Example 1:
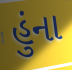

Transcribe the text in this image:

હુંના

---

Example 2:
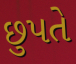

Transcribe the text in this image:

છુપતે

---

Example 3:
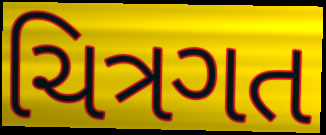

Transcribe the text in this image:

ચિત્રગત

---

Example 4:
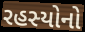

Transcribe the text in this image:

રહસ્યોનો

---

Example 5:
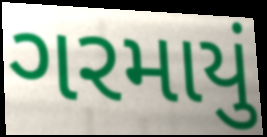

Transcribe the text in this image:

ગરમાયું